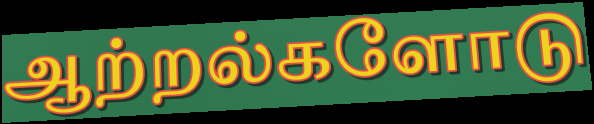
ஆற்றல்களோடு